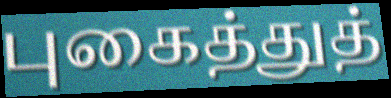
புகைத்துத்